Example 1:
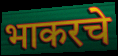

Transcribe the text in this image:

भाकरचे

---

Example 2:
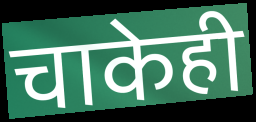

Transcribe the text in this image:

चाकेही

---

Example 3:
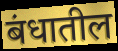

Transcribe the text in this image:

बंधातील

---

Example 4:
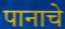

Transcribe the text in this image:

पानाचे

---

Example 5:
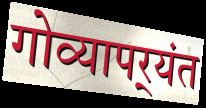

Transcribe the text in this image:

गोव्यापर्यंत